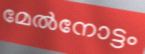
മേൽനോട്ടം